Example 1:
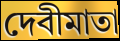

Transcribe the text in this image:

দেবীমাতা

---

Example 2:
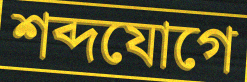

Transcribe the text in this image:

শব্দযোগে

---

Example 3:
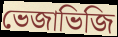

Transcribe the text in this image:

ভেজাভিজি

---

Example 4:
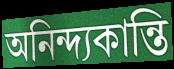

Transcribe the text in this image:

অনিন্দ্যকান্তি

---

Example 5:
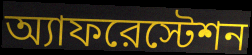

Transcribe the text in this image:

অ্যাফরেস্টেশন